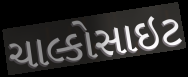
ચાલ્કોસાઇટ